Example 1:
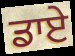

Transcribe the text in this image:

ਡਾਏ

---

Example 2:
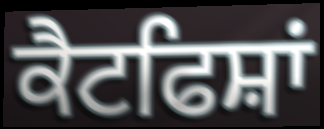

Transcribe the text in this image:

ਕੈਟਫਿਸ਼ਾਂ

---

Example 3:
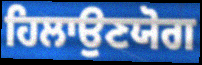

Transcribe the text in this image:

ਹਿਲਾਉਣਯੋਗ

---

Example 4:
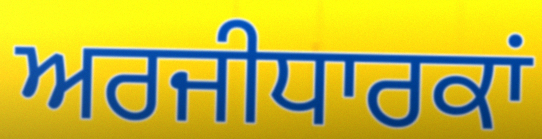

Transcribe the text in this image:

ਅਰਜੀਧਾਰਕਾਂ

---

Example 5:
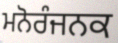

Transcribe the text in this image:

ਮਨੋਰੰਜਨਕ